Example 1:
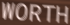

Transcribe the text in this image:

WORTH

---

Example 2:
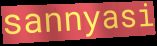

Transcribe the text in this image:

sannyasi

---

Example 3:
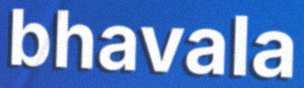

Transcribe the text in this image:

bhavala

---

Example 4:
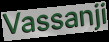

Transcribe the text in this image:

Vassanji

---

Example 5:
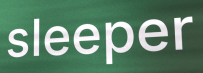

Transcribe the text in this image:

sleeper